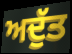
ਅਦੁੱਤ